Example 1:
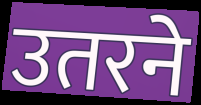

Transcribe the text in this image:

उतरने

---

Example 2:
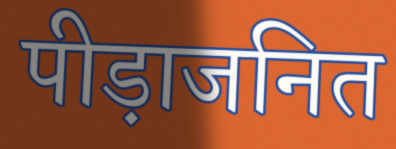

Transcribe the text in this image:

पीड़ाजनित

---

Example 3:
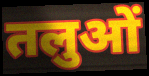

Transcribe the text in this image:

तलुओं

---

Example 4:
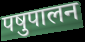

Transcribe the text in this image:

पषुपालन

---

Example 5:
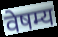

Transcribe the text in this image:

वेषम्य